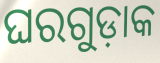
ଘରଗୁଡ଼ାକ